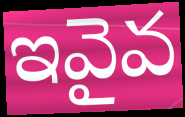
ఇవైవ